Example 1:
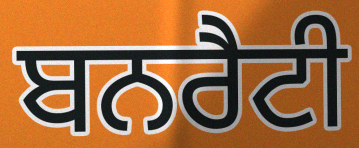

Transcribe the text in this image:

ਬਨਰੈਟੀ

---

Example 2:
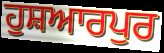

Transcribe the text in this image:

ਹੁਸ਼ਆਰਪੁਰ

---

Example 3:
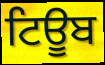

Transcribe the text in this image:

ਟਿਊੂਬ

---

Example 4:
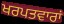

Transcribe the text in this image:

ਖਰਪਤਵਾਰਾਂ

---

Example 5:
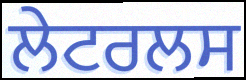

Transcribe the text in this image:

ਲੇਟਰਲਸ